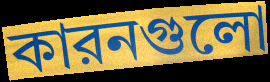
কারনগুলো